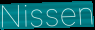
Nissen